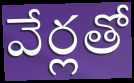
వేర్లతో